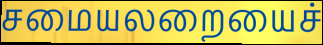
சமையலறையைச்